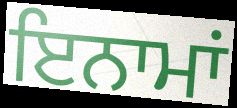
ਇਨਾਮਾਂ